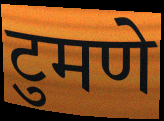
टुमणे